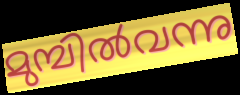
മുമ്പിൽവന്നു